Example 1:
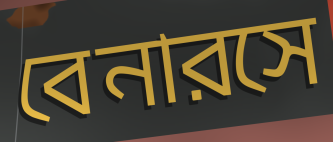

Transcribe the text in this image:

বেনারসে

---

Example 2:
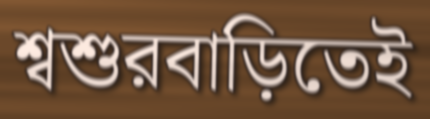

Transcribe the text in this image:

শ্বশুরবাড়িতেই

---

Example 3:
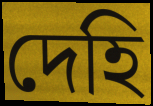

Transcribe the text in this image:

দেহি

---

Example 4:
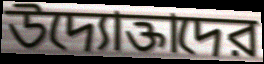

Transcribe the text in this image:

উদ্যোক্তাদের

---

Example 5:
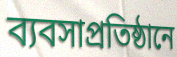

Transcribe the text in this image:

ব্যবসাপ্রতিষ্ঠানে